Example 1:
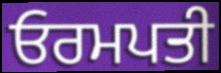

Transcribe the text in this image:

ਓਰਮਪਤੀ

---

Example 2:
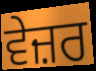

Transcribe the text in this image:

ਵੇਜ਼ਰ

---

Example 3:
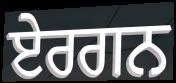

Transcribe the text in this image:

ਏਰਗਨ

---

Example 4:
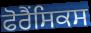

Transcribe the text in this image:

ਫੋਰੈਂਸਿਕਸ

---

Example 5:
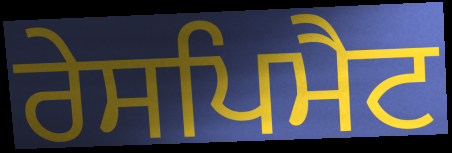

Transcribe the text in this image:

ਰੇਸਪਿਮੈਟ